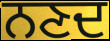
ਨਣਦ